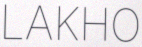
LAKHO